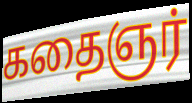
கதைஞர்